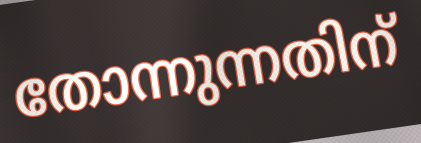
തോന്നുന്നതിന്